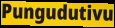
Pungudutivu